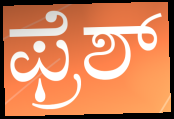
ಫ್ರೆಶ್